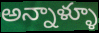
అన్నాళ్ళూ